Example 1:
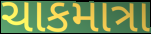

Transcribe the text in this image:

ચાકમાત્રા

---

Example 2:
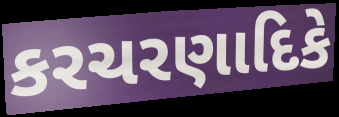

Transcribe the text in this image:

કરચરણાદિકે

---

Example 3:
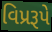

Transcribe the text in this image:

વિપ્રરૂપે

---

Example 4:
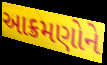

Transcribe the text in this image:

આક્રમણોને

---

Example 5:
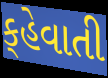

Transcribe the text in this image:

ક્‌હેવાતી